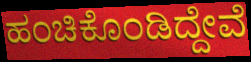
ಹಂಚಿಕೊಂಡಿದ್ದೇವೆ